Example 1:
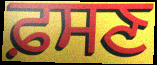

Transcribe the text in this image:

ਫ਼ਸਣ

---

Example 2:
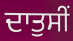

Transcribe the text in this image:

ਦਾਤੁਸੀਂ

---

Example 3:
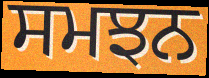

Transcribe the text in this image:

ਸਮਝਨ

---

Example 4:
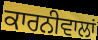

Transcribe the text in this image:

ਕਾਰਨੀਵਾਲਾਂ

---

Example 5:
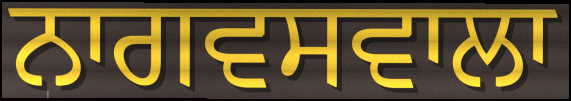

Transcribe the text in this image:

ਨਾਗਵਸਵਾਲਾ